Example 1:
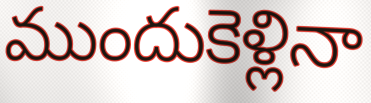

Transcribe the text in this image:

ముందుకెళ్లినా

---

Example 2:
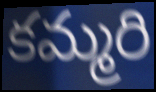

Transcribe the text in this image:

కమ్మరి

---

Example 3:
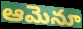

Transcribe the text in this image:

ఆమెనూ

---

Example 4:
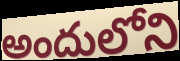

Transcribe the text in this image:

అందులోని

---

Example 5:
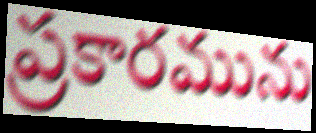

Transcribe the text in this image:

ప్రకారమును